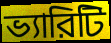
ভ্যারিটি